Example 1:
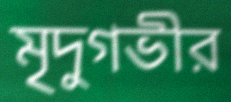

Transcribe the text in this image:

মৃদুগভীর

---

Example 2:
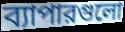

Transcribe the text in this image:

ব্যাপারগুলো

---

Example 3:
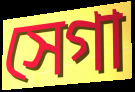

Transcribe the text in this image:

সেগা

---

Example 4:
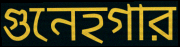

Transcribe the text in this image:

গুনেহগার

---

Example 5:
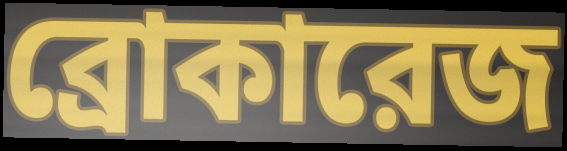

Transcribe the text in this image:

ব্রোকারেজ